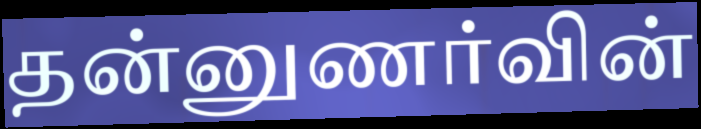
தன்னுணர்வின்